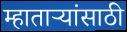
म्हाताऱ्यांसाठी